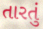
તારતું